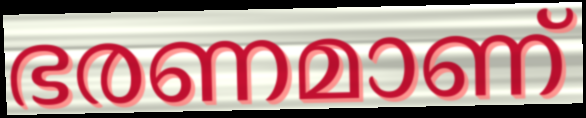
ഭരണമാണ്